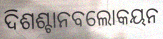
ଦିଶଶ୍ଚାନବଲୋକୟନ